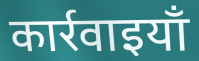
कार्रवाइयाँ